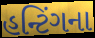
હન્ટિંગના